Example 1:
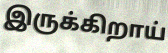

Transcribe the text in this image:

இருக்கிறாய்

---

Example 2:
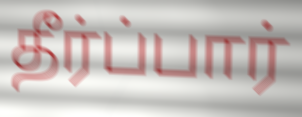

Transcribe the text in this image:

தீர்ப்பார்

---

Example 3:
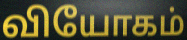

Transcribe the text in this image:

வியோகம்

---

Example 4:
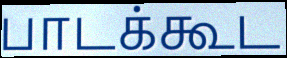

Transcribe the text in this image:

பாடக்கூட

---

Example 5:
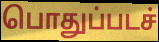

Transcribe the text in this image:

பொதுப்படச்